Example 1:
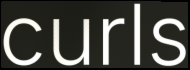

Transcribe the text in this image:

curls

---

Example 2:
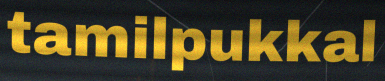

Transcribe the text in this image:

tamilpukkal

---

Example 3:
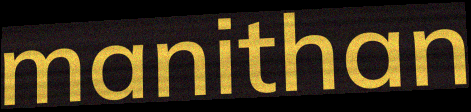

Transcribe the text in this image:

manithan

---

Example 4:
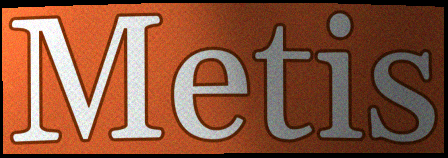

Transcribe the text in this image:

Metis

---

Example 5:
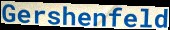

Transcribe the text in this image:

Gershenfeld